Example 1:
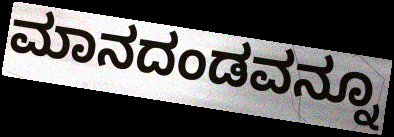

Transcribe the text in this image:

ಮಾನದಂಡವನ್ನೂ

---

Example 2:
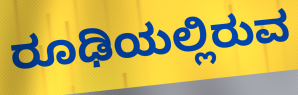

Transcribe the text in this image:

ರೂಢಿಯಲ್ಲಿರುವ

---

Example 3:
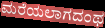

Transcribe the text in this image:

ಮರೆಯಲಾಗದಂಥ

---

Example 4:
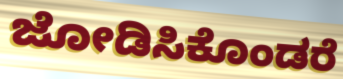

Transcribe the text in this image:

ಜೋಡಿಸಿಕೊಂಡರೆ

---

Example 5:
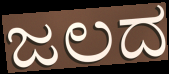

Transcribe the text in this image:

ಜಲದ